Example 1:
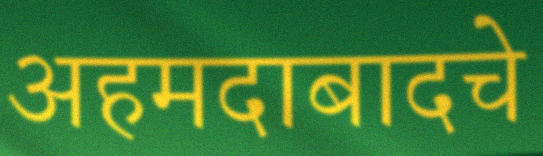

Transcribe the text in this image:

अहमदाबादचे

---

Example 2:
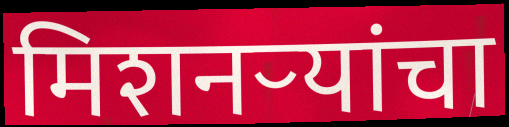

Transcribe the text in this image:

मिशनऱ्यांचा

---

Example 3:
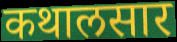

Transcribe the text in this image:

कथालसार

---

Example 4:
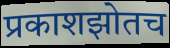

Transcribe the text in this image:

प्रकाशझोतच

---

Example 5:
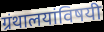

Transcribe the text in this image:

ग्रंथालयांविषयी